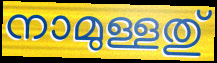
നാമുള്ളതു്